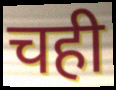
चही